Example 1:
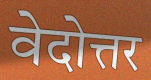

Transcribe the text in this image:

वेदोत्तर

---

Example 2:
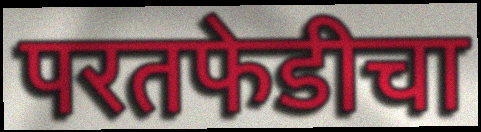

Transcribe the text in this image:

परतफेडीचा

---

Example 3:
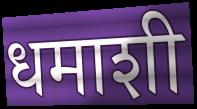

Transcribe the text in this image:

धमाशी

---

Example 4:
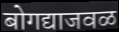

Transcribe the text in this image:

बोगद्याजवळ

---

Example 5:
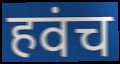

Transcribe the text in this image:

हवंच